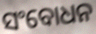
ସଂବୋଧନ